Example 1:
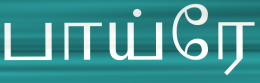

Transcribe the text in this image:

பாய்ரே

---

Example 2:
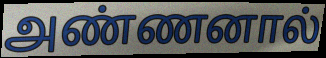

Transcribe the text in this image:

அண்ணனால்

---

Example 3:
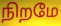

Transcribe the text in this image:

நிறமே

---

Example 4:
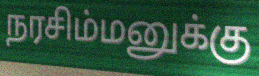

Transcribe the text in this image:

நரசிம்மனுக்கு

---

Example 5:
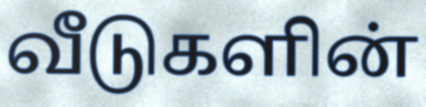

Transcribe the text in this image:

வீடுகளின்